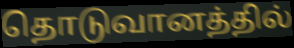
தொடுவானத்தில்